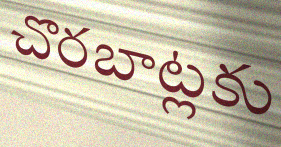
చొరబాట్లకు